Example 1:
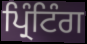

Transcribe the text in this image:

ਪ੍ਰਿੰਟਿੰਗ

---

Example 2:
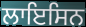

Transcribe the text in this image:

ਲਾਇਸਿਨ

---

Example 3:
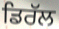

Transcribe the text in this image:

ਡਿਰੱਲ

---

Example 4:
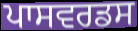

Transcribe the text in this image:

ਪਾਸਵਰਡਸ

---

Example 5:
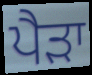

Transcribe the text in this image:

ਪੈੜਾ